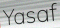
Yasaf